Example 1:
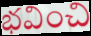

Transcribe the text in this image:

భవించి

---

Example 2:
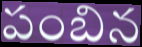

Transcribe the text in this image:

పంబిన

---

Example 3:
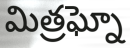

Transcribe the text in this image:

మిత్రఘ్నో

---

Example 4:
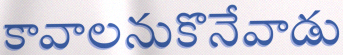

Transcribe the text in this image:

కావాలనుకొనేవాడు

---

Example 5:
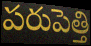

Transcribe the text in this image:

పరుపెత్తి